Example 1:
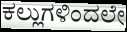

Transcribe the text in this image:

ಕಲ್ಲುಗಳಿಂದಲೇ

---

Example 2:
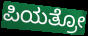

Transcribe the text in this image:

ಪಿಯತ್ರೋ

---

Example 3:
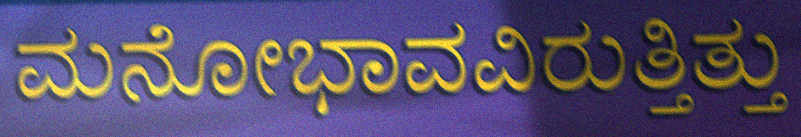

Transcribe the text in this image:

ಮನೋಭಾವವಿರುತ್ತಿತ್ತು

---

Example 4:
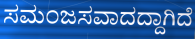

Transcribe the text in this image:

ಸಮಂಜಸವಾದದ್ದಾಗಿದೆ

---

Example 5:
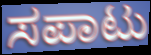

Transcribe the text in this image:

ಸಪಾಟು